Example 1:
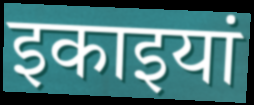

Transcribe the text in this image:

इकाइयां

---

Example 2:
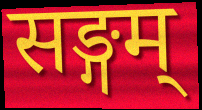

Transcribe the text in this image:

सङ्गम्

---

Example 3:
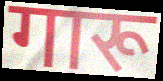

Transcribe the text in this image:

गारू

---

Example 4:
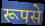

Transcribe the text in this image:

रूपसे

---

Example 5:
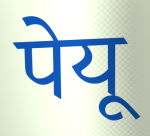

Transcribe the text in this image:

पेयू